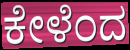
ಕೇಳೆಂದ